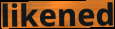
likened